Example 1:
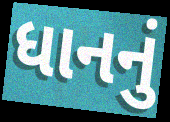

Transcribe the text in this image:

ધાનનું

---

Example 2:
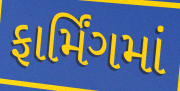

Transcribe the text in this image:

ફાર્મિંગમાં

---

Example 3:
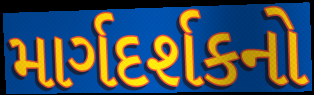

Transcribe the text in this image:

માર્ગદર્શકનો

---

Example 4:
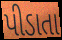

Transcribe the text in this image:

પીડાતા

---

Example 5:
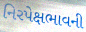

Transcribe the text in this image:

નિરપેક્ષભાવની